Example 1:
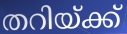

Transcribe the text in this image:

തറിയ്ക്ക്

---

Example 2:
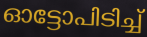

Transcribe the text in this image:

ഓട്ടോപിടിച്ച്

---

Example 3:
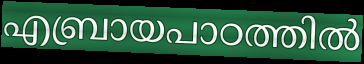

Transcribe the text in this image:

എബ്രായപാഠത്തിൽ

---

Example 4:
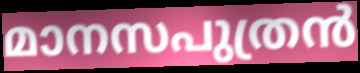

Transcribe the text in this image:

മാനസപുത്രൻ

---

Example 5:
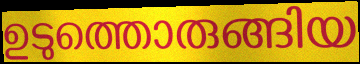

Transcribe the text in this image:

ഉടുത്തൊരുങ്ങിയ